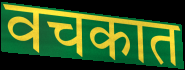
वचकात